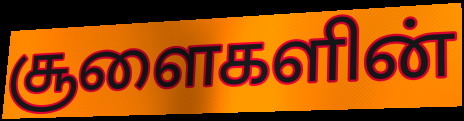
சூளைகளின்